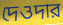
দেওদার